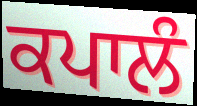
ਕਪਾਲੰ